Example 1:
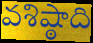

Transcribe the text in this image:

వశిష్ఠాది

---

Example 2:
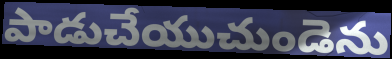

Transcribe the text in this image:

పాడుచేయుచుండెను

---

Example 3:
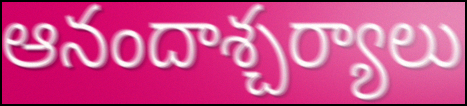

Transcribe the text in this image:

ఆనందాశ్చర్యాలు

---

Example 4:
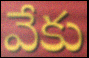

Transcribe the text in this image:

వేకు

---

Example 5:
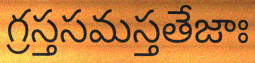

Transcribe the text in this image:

గ్రస్తసమస్తతేజాః